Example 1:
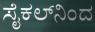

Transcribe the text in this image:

ಸೈಕಲ್‌ನಿಂದ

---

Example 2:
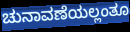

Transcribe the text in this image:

ಚುನಾವಣೆಯಲ್ಲಂತೂ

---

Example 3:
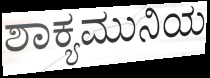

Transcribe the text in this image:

ಶಾಕ್ಯಮುನಿಯ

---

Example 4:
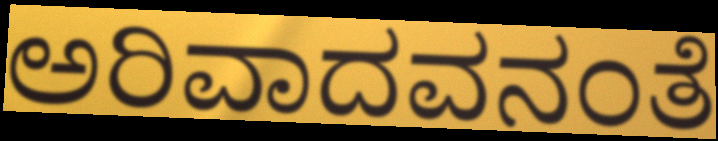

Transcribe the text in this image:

ಅರಿವಾದವನಂತೆ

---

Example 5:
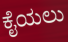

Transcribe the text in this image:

ಕೈಯಲು